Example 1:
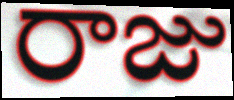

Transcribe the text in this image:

రాజు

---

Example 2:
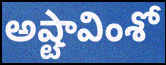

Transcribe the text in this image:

అష్టావింశో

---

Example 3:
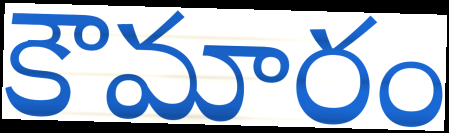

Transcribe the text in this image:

కౌమారం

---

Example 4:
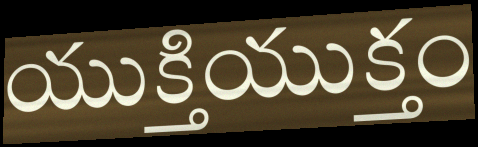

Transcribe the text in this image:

యుక్తియుక్తం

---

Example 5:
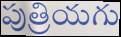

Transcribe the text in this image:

పుత్రియగు